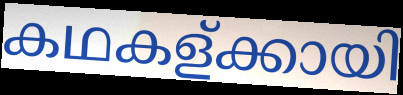
കഥകള്ക്കായി